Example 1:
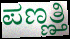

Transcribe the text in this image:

ಪಣ್ಣತ್ತಿ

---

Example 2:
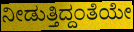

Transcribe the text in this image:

ನೀಡುತ್ತಿದ್ದಂತೆಯೇ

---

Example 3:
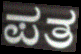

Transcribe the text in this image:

ಪತ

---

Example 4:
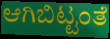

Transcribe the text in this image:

ಆಗಿಬಿಟ್ಟಂತೆ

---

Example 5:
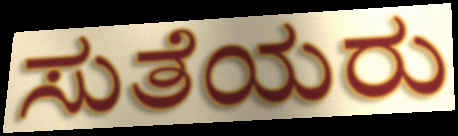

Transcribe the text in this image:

ಸುತೆಯರು